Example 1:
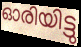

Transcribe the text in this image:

ഓരിയിട്ടു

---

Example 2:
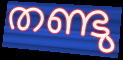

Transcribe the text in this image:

തണ്ടു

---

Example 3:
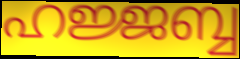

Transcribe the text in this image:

ഹജ്ജബ്ബ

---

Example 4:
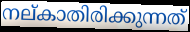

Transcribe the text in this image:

നല്കാതിരിക്കുന്നത്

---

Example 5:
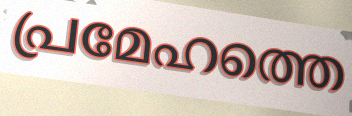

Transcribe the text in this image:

പ്രമേഹത്തെ